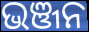
ଭଞ୍ଜନ